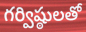
గర్విష్ఠులతో